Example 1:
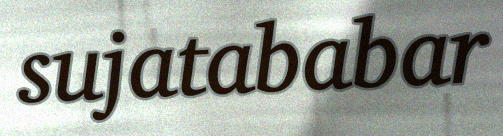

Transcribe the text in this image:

sujatababar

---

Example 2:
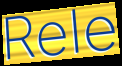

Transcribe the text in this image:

Rele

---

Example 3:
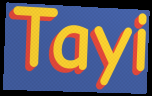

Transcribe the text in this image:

Tayi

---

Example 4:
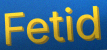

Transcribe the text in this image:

Fetid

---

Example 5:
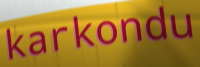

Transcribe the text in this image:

karkondu